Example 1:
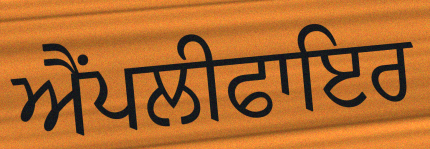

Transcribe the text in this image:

ਐਂਪਲੀਫਾਇਰ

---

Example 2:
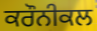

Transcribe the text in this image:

ਕਰੌਨੀਕਲ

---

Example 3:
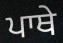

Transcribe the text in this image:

ਪਾਥੇ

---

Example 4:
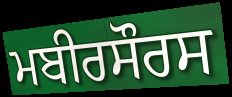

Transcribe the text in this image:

ਮਬੀਰਸੌਰਸ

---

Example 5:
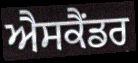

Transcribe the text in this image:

ਐਸਕੈਂਡਰ